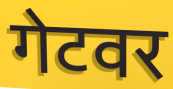
गेटवर